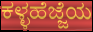
ಕಳ್ಳಹೆಜ್ಜೆಯ